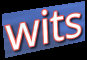
wits